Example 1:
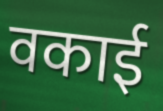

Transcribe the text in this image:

वकाई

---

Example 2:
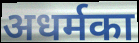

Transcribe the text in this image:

अधर्मका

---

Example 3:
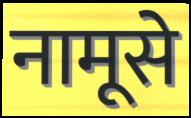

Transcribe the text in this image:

नामूसे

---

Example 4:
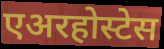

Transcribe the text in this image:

एअरहोस्टेस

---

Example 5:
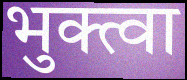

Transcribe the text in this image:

भुक्त्वा